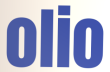
olio